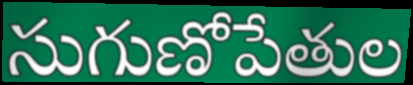
సుగుణోపేతుల